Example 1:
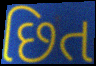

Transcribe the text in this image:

છિત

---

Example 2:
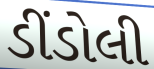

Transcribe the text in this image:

ડીંડોલી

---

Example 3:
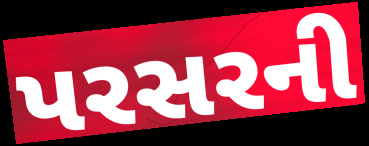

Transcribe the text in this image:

પરસરની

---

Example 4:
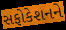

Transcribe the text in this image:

સફોકેશનને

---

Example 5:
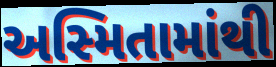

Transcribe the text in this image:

અસ્મિતામાંથી